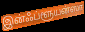
இன்ஃப்ளூயன்ஸா